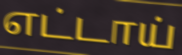
எட்டாய்